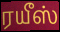
ரயீஸ்